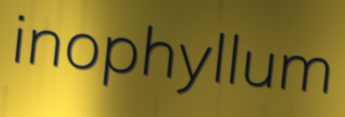
inophyllum